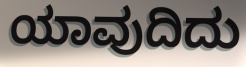
ಯಾವುದಿದು